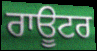
ਰਾਊਟਰ